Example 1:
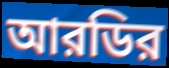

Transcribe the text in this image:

আরডির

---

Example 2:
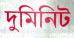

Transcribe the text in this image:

দুমিনিট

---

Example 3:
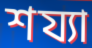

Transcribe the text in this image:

শয্যা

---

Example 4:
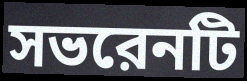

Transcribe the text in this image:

সভরেনটি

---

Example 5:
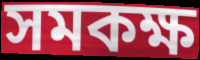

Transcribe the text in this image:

সমকক্ষ